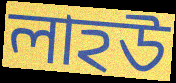
লাহউ